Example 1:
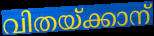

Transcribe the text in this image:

വിതയ്ക്കാന്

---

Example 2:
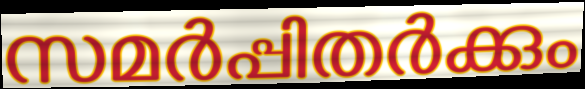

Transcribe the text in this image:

സമർപ്പിതർക്കും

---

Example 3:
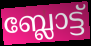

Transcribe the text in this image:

ബ്ലോട്ട്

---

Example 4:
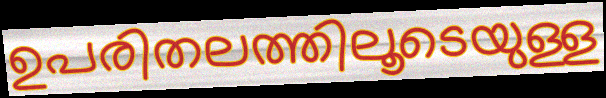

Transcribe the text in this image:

ഉപരിതലത്തിലൂടെയുള്ള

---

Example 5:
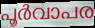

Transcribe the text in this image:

പൂർവാപര